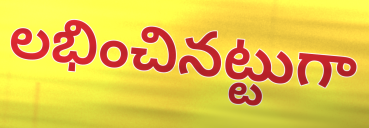
లభించినట్టుగా